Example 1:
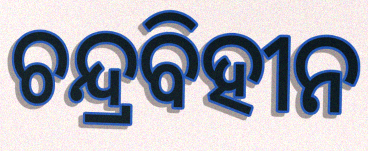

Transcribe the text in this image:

ଚନ୍ଦ୍ରବିହୀନ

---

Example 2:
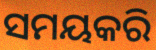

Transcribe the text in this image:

ସମୟକରି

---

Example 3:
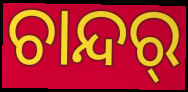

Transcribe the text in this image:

ଚାନ୍ଦର୍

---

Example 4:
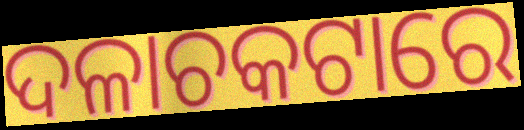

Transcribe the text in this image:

ଦଳାଚକଟାରେ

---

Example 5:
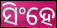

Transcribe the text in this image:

ସିଂହେ